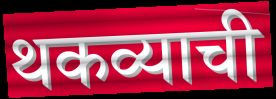
थकव्याची